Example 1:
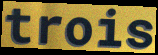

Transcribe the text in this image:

trois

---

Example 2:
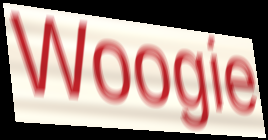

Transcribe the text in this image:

Woogie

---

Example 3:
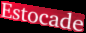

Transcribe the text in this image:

Estocade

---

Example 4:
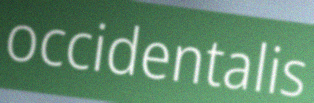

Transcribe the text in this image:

occidentalis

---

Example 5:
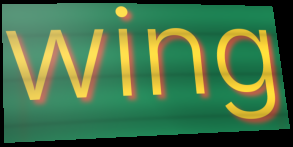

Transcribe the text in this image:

wing